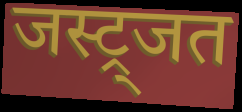
जस्ट्र्जत